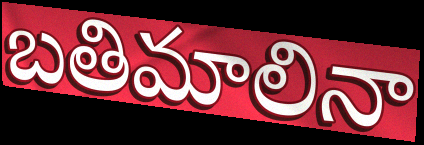
బతిమాలినా